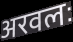
अरवलः